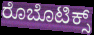
ರೊಬೊಟಿಕ್ಸ್